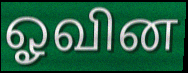
ஓவின